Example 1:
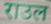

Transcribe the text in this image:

राउल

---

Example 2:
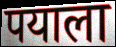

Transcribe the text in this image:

पयाला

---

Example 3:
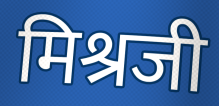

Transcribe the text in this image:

मिश्रजी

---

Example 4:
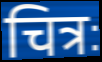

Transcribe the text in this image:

चित्रः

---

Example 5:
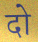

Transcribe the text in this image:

दो